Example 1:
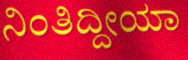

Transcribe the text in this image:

ನಿಂತಿದ್ದೀಯಾ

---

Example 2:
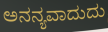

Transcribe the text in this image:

ಅನನ್ಯವಾದುದು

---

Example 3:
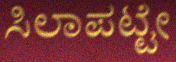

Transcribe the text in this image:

ಸಿಲಾಪಟ್ಟೇ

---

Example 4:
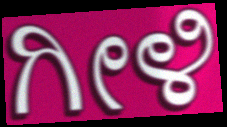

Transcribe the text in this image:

ಗೀಳಿ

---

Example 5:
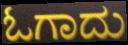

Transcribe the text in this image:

ಓಗಾದು